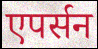
एपर्सन